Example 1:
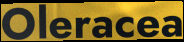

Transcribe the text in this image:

Oleracea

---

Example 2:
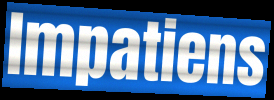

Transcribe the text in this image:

Impatiens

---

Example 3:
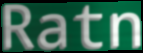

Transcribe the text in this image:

Ratn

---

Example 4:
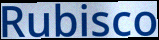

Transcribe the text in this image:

Rubisco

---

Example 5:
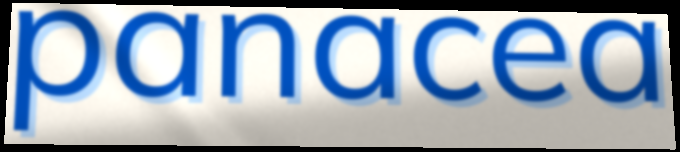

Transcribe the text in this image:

panacea